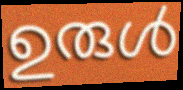
ഉരുൾ